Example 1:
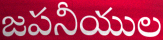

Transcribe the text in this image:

జపనీయుల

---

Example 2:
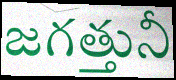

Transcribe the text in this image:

జగత్తునీ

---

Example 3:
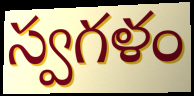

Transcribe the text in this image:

స్వగళం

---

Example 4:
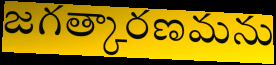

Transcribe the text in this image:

జగత్కారణమను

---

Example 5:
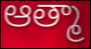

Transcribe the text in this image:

ఆత్మా